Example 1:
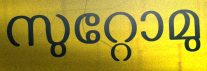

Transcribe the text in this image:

സുറ്റോമു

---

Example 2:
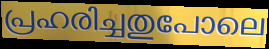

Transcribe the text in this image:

പ്രഹരിച്ചതുപോലെ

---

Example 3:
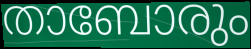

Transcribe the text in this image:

താബോരും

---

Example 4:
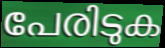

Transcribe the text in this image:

പേരിടുക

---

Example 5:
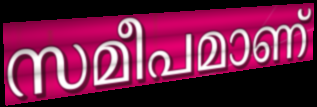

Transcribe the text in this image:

സമീപമാണ്